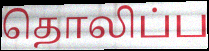
தொலிப்ப